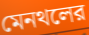
মেনথলের